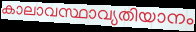
കാലാവസ്ഥാവ്യതിയാനം